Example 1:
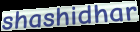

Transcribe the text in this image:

shashidhar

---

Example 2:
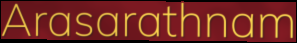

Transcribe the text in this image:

Arasarathnam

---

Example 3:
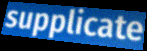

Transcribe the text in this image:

supplicate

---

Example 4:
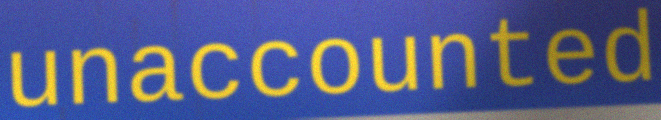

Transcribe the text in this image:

unaccounted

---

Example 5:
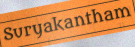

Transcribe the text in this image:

Suryakantham